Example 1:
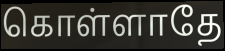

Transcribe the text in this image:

கொள்ளாதே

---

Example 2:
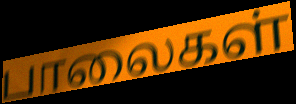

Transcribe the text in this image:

பாலைகள்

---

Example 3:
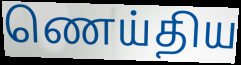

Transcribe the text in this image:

ணெய்திய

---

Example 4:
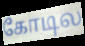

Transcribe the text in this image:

கோடில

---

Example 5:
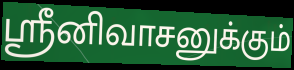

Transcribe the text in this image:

ஸ்ரீனிவாசனுக்கும்